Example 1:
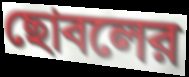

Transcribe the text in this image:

ছোবলের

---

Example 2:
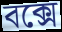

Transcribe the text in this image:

বক্সে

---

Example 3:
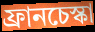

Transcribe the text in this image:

ফ্রানচেস্কা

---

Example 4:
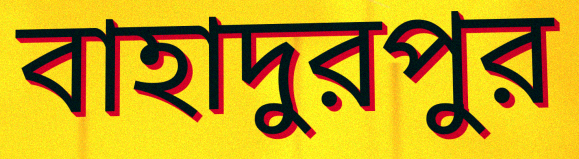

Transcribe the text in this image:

বাহাদুরপুর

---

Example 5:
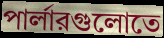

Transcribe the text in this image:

পার্লারগুলোতে